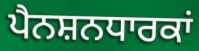
ਪੈਨਸ਼ਨਧਾਰਕਾਂ